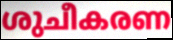
ശുചീകരണ